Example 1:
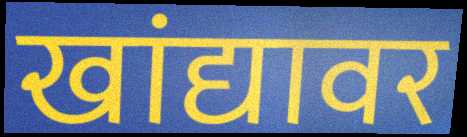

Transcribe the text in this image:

खांद्यावर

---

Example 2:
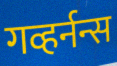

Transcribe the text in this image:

गव्हर्नन्स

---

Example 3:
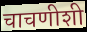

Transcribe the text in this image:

चाचणीशी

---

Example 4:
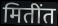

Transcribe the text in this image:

मितींत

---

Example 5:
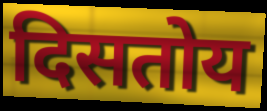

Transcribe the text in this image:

दिसतोय